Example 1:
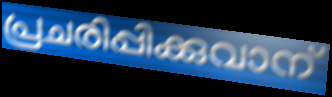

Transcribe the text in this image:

പ്രചരിപ്പിക്കുവാന്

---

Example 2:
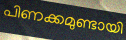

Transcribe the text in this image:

പിണക്കമുണ്ടായി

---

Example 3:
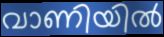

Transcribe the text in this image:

വാണിയിൽ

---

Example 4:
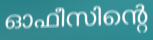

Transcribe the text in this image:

ഓഫീസിന്റെ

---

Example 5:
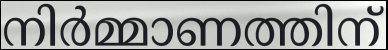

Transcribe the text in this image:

നിർമ്മാണത്തിന്